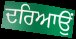
ਦਰਿਆਉਂ